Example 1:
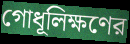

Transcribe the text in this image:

গোধূলিক্ষণের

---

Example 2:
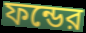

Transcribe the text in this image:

ফন্ডের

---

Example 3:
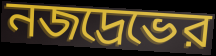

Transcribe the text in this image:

নজদ্রেভের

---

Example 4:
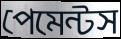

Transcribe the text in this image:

পেমেন্টস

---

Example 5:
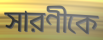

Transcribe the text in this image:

সারণীকে